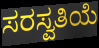
ಸರಸ್ವತಿಯೆ